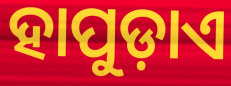
ହାପୁଡ଼ାଏ